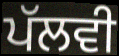
ਪੱਲਵੀ